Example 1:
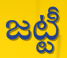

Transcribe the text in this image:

జట్టీ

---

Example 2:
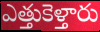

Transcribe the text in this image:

ఎత్తుకెళ్తారు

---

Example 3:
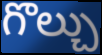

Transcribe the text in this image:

గొల్చు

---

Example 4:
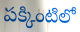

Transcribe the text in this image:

పక్కింటిలో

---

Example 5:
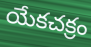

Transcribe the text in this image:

యేకచక్రం